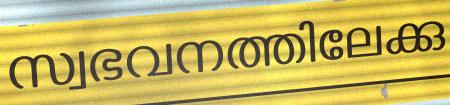
സ്വഭവനത്തിലേക്കു